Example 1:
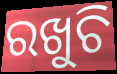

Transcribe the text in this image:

ରଖୁଚି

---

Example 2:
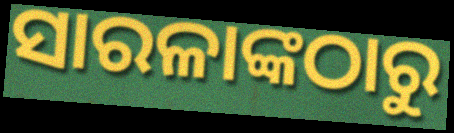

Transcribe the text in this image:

ସାରଳାଙ୍କଠାରୁ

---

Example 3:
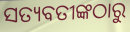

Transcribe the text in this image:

ସତ୍ୟବତୀଙ୍କଠାରୁ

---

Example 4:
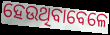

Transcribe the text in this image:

ହେଉଥିବାବେଳେ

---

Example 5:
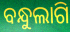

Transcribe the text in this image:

ବନ୍ଧୁଲାଗି